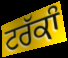
ਟਰੱਕਾੰ